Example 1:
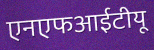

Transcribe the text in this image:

एनएफआईटीयू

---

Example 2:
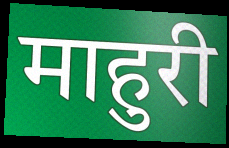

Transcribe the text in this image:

माहुरी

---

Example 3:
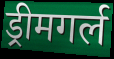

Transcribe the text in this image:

ड्रीमगर्ल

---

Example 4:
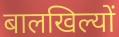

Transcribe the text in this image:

बालखिल्यों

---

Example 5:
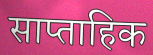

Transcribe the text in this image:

साप्‍ताहिक